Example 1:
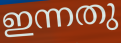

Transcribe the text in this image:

ഇന്നതു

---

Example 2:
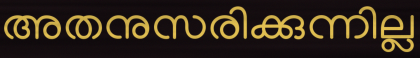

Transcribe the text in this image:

അതനുസരിക്കുന്നില്ല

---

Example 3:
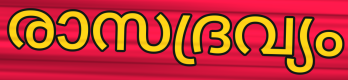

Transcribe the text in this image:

രാസദ്രവ്യം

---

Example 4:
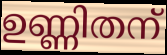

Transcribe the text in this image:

ഉണ്ണിതന്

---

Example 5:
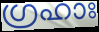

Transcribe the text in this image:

ഗ്രഹാഃ